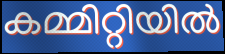
കമ്മിറ്റിയിൽ